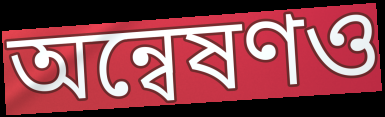
অন্বেষণও